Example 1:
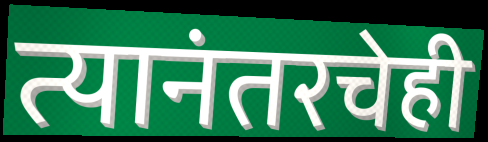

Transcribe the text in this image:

त्यानंतरचेही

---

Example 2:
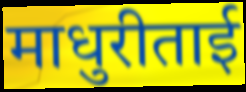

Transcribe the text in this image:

माधुरीताई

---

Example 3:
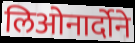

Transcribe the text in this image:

लिओनार्दोने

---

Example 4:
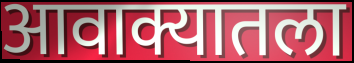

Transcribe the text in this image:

आवाक्यातला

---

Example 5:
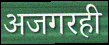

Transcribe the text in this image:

अजगरही